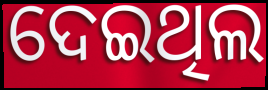
ଦେଇଥିଲ